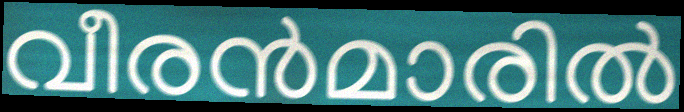
വീരൻമാരിൽ